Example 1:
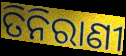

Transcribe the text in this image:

ତିନିରାଣୀ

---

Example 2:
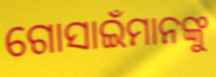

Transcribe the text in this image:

ଗୋସାଇଁମାନଙ୍କୁ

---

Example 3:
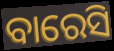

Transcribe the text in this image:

ବାରେସି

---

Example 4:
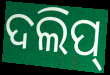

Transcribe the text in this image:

ଦଲିପ୍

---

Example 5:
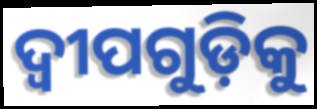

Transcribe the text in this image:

ଦ୍ୱୀପଗୁଡ଼ିକୁ